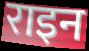
राइन